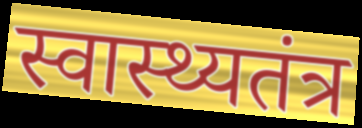
स्वास्थ्यतंत्र